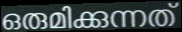
ഒരുമിക്കുന്നത്